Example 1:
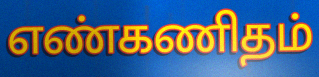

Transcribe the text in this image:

எண்கணிதம்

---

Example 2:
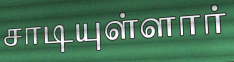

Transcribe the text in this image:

சாடியுள்ளார்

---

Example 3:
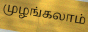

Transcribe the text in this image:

முழங்கலாம்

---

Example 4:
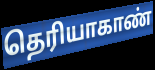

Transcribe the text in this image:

தெரியாகாண்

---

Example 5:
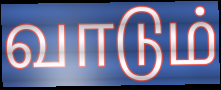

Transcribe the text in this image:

வாடும்